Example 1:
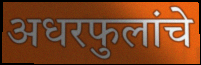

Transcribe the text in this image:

अधरफुलांचे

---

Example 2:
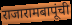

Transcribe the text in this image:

राजारामबापूंची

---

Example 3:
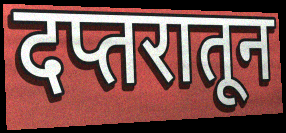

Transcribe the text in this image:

दप्तरातून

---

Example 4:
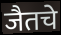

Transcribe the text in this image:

जैतचे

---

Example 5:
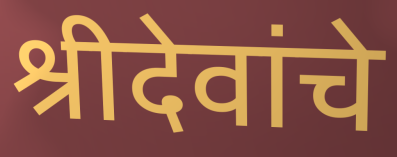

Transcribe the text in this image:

श्रीदेवांचे